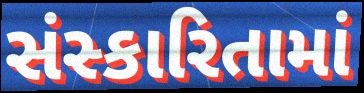
સંસ્કારિતામાં